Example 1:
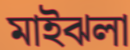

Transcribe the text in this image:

মাইঝলা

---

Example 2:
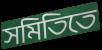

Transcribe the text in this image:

সমিতিতে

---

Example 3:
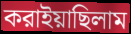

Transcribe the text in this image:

করাইয়াছিলাম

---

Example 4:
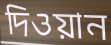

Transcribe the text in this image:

দিওয়ান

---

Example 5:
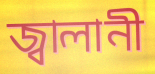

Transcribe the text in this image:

জ্বালানী